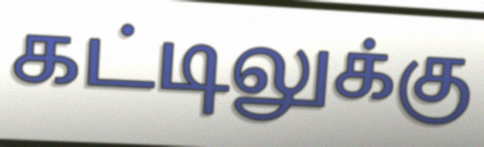
கட்டிலுக்கு